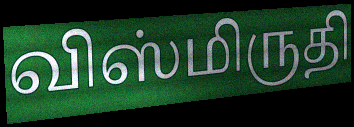
விஸ்மிருதி